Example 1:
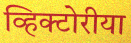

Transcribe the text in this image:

व्हिक्टोरीया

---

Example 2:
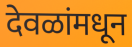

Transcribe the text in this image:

देवळांमधून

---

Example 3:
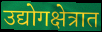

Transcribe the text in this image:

उद्योगक्षेत्रात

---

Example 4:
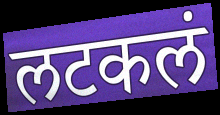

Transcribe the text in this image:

लटकलं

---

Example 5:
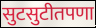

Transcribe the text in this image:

सुटसुटीतपणा